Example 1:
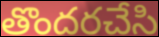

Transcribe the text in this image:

తొందరచేసి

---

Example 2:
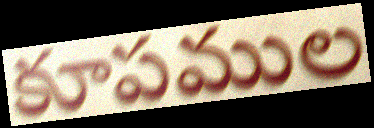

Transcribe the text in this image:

కూపముల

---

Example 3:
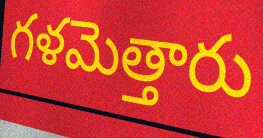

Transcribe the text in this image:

గళమెత్తారు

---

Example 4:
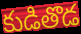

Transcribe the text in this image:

కుడితొడ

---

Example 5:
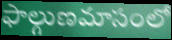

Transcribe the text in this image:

ఫాల్గుణమాసంలో